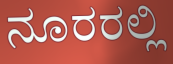
ನೂರರಲ್ಲಿ